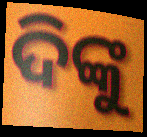
ଦିଙ୍କୁ